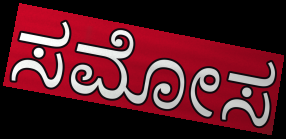
ಸಮೋಸ